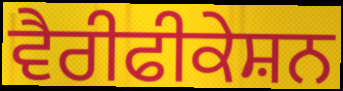
ਵੈਰੀਫੀਕੇਸ਼ਨ